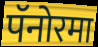
पॅनोरमा